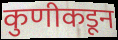
कुणीकडून